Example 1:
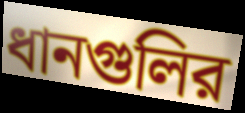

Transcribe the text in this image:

ধানগুলির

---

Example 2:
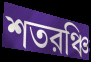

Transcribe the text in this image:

শতরঞ্চি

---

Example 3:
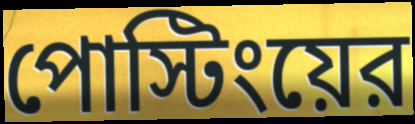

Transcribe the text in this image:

পোস্টিংয়ের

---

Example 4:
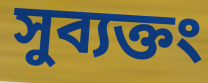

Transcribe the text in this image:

সুব্যক্তং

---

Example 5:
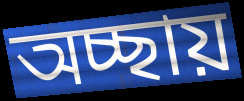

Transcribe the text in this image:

অচ্ছায়